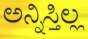
ಅನ್ನಿಸ್ತಿಲ್ಲ